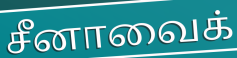
சீனாவைக்